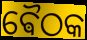
ଵୈଠକ